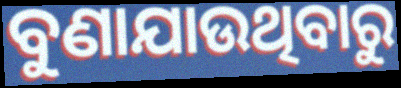
ବୁଣାଯାଉଥିବାରୁ